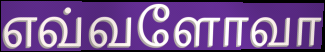
எவ்வளோவா